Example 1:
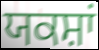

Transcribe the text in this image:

ਯਕਸ਼ਾਂ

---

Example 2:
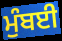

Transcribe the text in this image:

ਮੁੰਬਈ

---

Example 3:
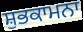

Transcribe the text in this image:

ਸ਼ੁਭਕਾਮਨਾ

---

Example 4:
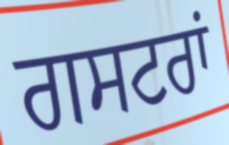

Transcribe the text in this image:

ਗਸਟਰਾਂ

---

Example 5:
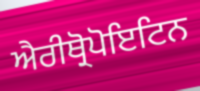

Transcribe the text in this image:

ਐਰੀਥ੍ਰੋਪੋਇਟਿਨ